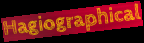
Hagiographical